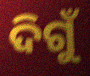
ଦିଗୁଁ